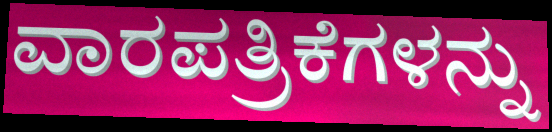
ವಾರಪತ್ರಿಕೆಗಳನ್ನು